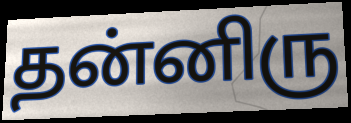
தன்னிரு